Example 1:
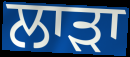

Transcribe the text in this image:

ਲਾੜਾ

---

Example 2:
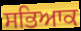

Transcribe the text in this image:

ਸਭਿਆਕ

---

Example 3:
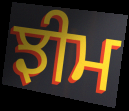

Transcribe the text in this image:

ਝੀਮ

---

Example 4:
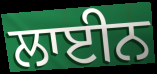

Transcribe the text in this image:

ਲਾਈਨ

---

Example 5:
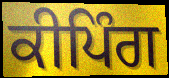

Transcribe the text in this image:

ਕੀਪਿੰਗ